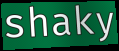
shaky